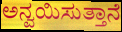
ಅನ್ವಯಿಸುತ್ತಾನೆ